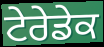
ਟੇਰੇਡੇਕ